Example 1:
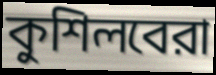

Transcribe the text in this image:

কুশিলবেরা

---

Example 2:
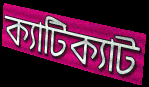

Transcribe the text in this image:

ক্যাটিক্যাট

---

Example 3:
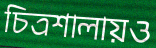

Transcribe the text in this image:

চিত্রশালায়ও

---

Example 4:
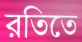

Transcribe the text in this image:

রতিতে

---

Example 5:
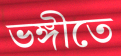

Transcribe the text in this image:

ভঙ্গীতে